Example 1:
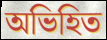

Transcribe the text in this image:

অভিহিত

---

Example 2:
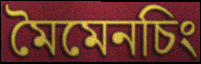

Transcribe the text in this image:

মৈমেনচিং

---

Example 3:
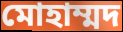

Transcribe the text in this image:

মোহাম্মদ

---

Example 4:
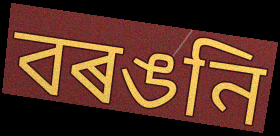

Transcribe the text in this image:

বৰঙনি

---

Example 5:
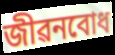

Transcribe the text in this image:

জীৱনবোধ